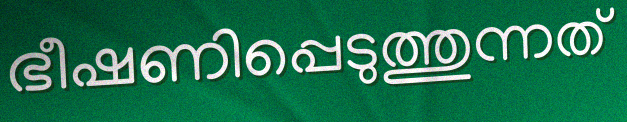
ഭീഷണിപ്പെടുത്തുന്നത്